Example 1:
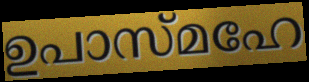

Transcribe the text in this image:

ഉപാസ്മഹേ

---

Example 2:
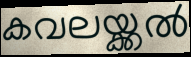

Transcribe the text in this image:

കവലയ്ക്കൽ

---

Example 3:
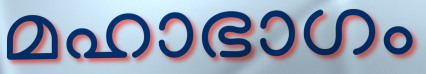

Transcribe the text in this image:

മഹാഭാഗം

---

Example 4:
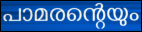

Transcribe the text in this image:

പാമരന്റെയും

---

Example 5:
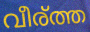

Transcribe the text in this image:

വീര്ത്ത